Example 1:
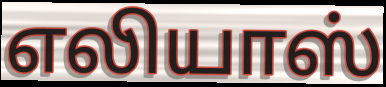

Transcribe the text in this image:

எலியாஸ்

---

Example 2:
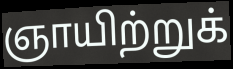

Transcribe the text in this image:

ஞாயிற்றுக்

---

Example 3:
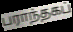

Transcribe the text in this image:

பராந்தகப்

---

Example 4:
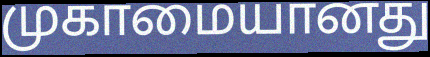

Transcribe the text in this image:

முகாமையானது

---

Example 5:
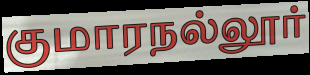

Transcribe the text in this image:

குமாரநல்லூர்